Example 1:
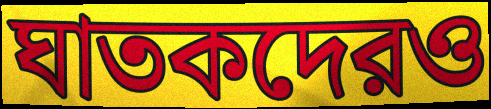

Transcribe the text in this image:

ঘাতকদেরও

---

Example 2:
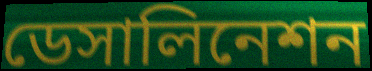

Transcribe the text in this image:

ডেসালিনেশন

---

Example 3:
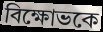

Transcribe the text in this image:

বিক্ষোভকে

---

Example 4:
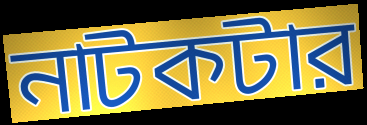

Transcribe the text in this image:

নাটকটার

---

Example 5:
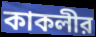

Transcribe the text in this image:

কাকলীর